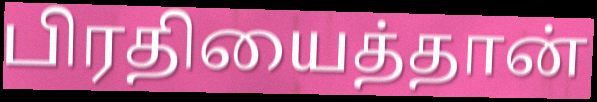
பிரதியைத்தான்